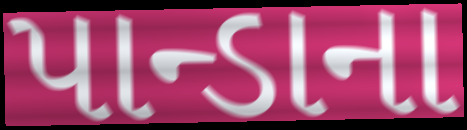
પાન્ડાના